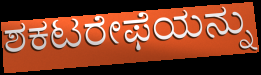
ಶಕಟರೇಫೆಯನ್ನು